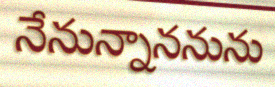
నేనున్నాననును